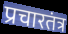
प्रचारतंत्र